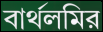
বার্থলমির